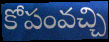
కోపంవచ్చి